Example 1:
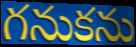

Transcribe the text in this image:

గనుకను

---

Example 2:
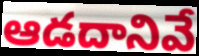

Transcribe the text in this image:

ఆడదానివే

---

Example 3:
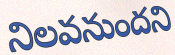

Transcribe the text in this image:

నిలవనుందని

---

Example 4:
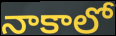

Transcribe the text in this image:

నాకాలో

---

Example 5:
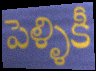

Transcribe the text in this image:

పెళ్ళికీ